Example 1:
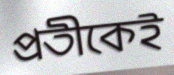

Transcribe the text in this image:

প্রতীকেই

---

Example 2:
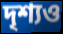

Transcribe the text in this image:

দৃশ্যও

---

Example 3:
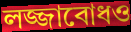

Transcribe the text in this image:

লজ্জাবোধও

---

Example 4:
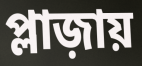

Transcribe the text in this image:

প্লাজ়ায়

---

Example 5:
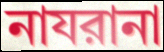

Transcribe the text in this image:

নাযরানা